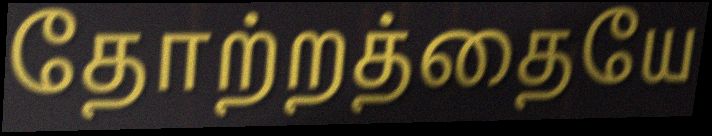
தோற்றத்தையே